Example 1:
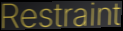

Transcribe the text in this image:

Restraint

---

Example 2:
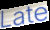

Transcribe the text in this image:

Late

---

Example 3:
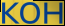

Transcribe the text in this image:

KOH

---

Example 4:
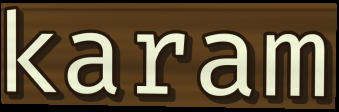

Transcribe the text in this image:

karam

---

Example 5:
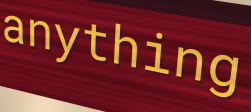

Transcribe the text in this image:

anything